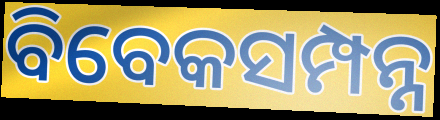
ବିବେକସମ୍ପନ୍ନ